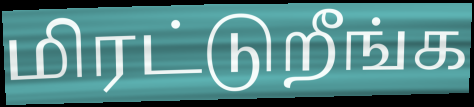
மிரட்டுறீங்க